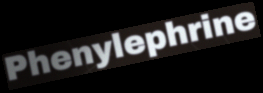
Phenylephrine